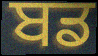
ਬਡ